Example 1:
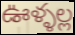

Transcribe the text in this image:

ఊళ్ళల్ల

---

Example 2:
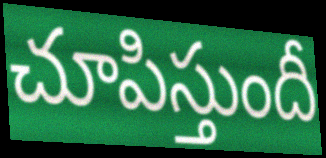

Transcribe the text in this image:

చూపిస్తుందీ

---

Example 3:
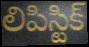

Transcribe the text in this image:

లిపిస్టిక్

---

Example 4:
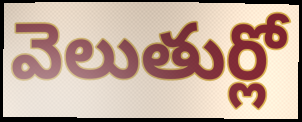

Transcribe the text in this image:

వెలుతుర్లో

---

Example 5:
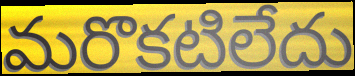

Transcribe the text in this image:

మరొకటిలేదు